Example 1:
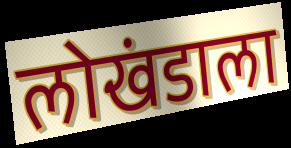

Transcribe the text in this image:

लोखंडाला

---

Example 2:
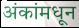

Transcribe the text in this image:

अंकांमधून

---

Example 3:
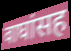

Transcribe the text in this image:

वाघांसह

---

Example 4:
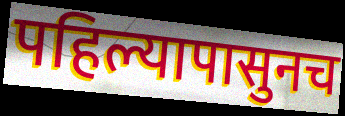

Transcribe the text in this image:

पहिल्यापासुनच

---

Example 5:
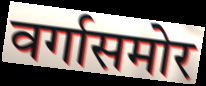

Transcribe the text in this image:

वर्गासमोर